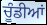
ਚੂੰਡੀਆਂ